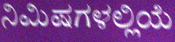
ನಿಮಿಷಗಳಲ್ಲಿಯೆ